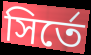
সির্তে